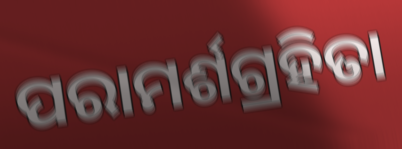
ପରାମର୍ଶଗ୍ରହିତା